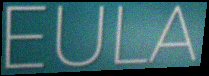
EULA